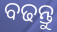
ବଢନ୍ତୁ